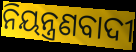
ନିୟନ୍ତ୍ରଣବାଦୀ